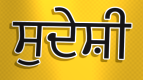
ਸੁਦੇਸ਼ੀ